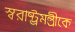
স্বরাষ্ট্রমন্ত্রীকে